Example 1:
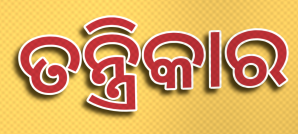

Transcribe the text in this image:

ତନ୍ତ୍ରିକାର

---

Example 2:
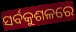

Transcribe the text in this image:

ସର୍ବକୁଶଳରେ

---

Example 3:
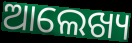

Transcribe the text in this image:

ଆଲେଖ୍ୟ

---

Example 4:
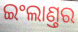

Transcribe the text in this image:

ଇଂଲାଣ୍ତର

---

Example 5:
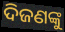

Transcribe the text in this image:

ଦିଜଣଙ୍କୁ